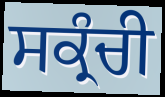
ਸਕ੍ਰੰਚੀ